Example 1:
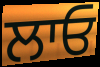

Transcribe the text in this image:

ਲਾਓ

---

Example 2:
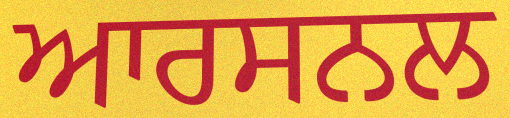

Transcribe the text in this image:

ਆਰਸਨਲ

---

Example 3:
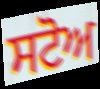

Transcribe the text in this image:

ਸਟੋਅ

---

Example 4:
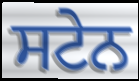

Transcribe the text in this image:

ਸਟੇਨ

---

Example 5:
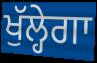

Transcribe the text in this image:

ਖੁੱਲ੍ਹੇਗਾ